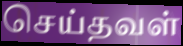
செய்தவள்